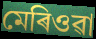
মেৰিওৱা